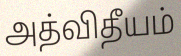
அத்விதீயம்